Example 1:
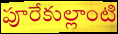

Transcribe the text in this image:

పూరేకుల్లాంటి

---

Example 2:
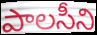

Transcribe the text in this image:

పాలసీని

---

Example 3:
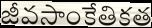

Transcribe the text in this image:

జీవసాంకేతికత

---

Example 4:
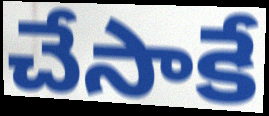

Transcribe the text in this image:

చేసాకే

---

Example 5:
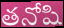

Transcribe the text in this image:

తనోషి